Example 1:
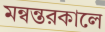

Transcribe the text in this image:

মন্বন্তরকালে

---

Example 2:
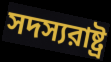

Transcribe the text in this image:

সদস্যরাষ্ট্র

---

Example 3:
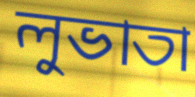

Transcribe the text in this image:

লুভাতা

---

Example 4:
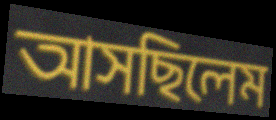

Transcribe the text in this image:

আসছিলেম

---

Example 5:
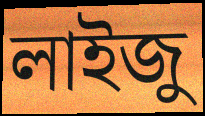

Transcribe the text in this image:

লাইজু